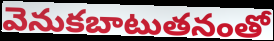
వెనుకబాటుతనంతో